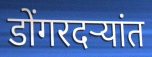
डोंगरदऱ्यांत